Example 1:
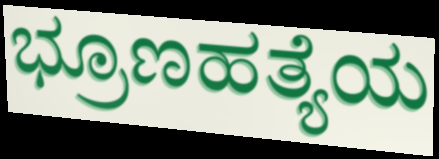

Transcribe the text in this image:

ಭ್ರೂಣಹತ್ಯೆಯ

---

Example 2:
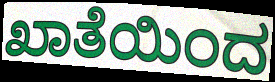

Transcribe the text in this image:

ಖಾತೆಯಿಂದ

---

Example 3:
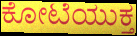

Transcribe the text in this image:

ಕೋಟೆಯುಕ್ತ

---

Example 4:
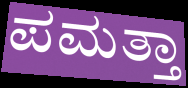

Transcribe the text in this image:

ಪಮತ್ತಾ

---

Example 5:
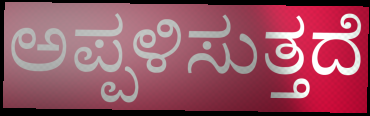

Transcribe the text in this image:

ಅಪ್ಪಳಿಸುತ್ತದೆ